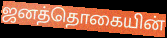
ஜனத்தொகையின்